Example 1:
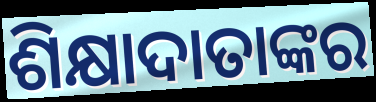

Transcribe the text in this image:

ଶିକ୍ଷାଦାତାଙ୍କର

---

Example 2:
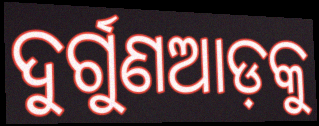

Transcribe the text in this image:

ଦୁର୍ଗୁଣଆଡ଼କୁ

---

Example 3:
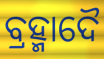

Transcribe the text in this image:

ବ୍ରହ୍ମାଦୈ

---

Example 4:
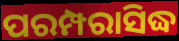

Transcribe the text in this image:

ପରମ୍ପରାସିଦ୍ଧ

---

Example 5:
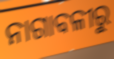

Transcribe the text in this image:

ନାଗାବଳୀରୁ